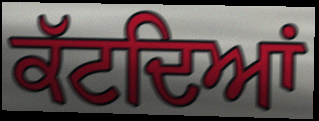
ਕੱਟਦਿਆਂ